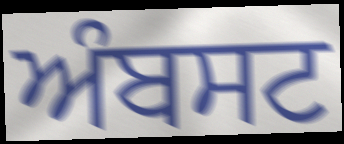
ਅੰਬਸਟ